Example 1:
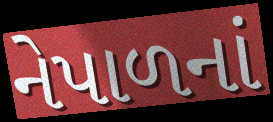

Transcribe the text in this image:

નેપાળનાં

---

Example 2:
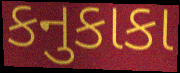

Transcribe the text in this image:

કનુકાકા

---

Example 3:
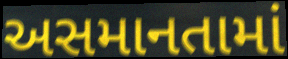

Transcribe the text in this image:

અસમાનતામાં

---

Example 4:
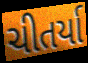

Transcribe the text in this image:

ચીતર્યા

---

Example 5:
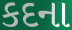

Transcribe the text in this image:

કદના